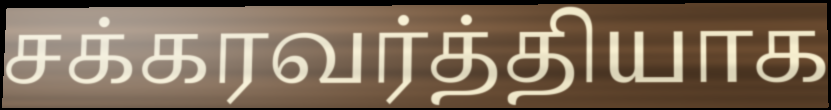
சக்கரவர்த்தியாக